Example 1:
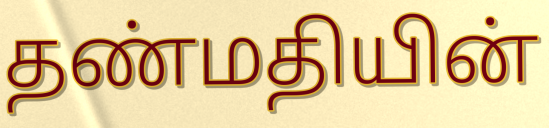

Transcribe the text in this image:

தண்மதியின்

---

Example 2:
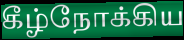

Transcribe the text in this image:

கீழ்நோக்கிய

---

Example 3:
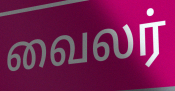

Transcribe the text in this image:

வைலர்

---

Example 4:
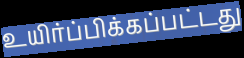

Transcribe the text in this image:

உயிர்ப்பிக்கப்பட்டது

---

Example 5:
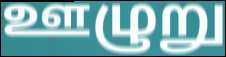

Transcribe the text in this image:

ஊழுறு